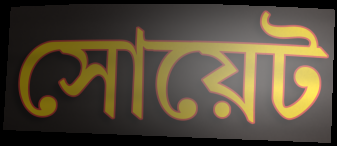
সোয়েট